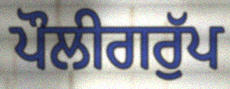
ਪੌਲੀਗਰੁੱਪ